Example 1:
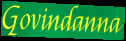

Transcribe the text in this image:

Govindanna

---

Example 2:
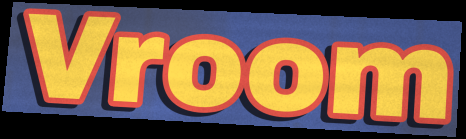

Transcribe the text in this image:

Vroom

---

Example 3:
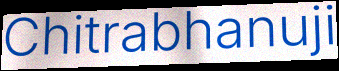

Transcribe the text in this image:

Chitrabhanuji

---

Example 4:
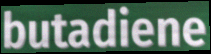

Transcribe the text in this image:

butadiene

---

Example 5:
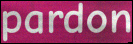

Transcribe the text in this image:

pardon